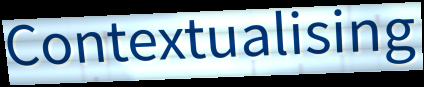
Contextualising